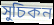
সুচিকন